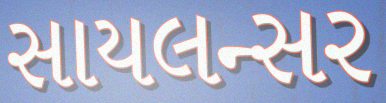
સાયલન્સર